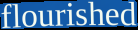
flourished